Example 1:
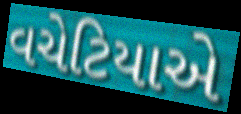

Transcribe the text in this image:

વચેટિયાએ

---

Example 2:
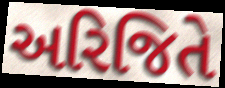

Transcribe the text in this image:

અરિજિતે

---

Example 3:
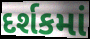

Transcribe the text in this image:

દર્શકમાં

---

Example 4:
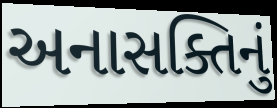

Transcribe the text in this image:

અનાસક્તિનું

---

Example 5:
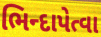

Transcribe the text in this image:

ભિન્દાપેત્વા